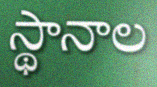
స్థానాల